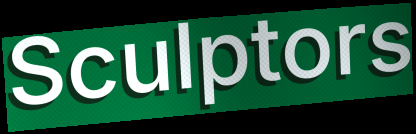
Sculptors